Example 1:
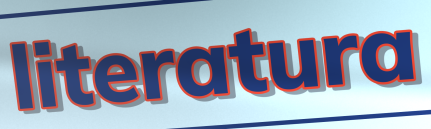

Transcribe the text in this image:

literatura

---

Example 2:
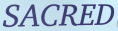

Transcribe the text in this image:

SACRED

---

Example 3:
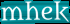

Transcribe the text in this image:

mhek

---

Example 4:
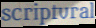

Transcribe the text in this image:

scriptural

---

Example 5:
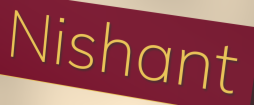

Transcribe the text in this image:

Nishant